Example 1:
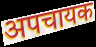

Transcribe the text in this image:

अपचायक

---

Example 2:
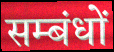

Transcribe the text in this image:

सम्बंधों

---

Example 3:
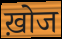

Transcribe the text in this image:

ख़ोज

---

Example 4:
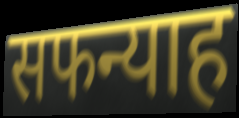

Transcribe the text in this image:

सफन्याह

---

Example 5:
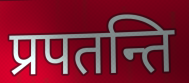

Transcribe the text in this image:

प्रपतन्ति